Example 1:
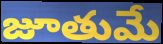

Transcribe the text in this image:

జూతుమే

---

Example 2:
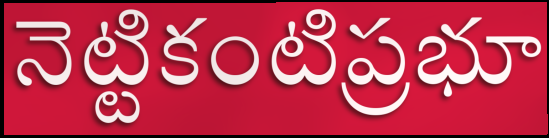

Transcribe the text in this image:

నెట్టికంటిప్రభూ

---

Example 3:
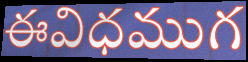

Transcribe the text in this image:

ఈవిధముగ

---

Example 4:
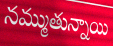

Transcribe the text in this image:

నమ్ముతున్నాయి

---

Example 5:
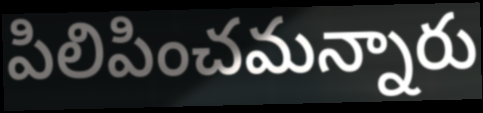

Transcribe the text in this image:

పిలిపించమన్నారు